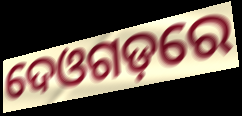
ଦେଓଗଡ଼ରେ